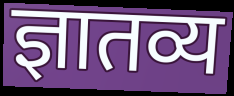
ज्ञातव्य